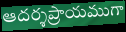
ఆదర్శప్రాయముగా